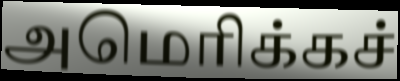
அமெரிக்கச்